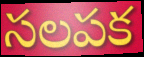
సలపక